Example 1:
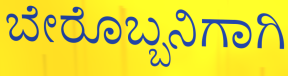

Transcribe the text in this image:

ಬೇರೊಬ್ಬನಿಗಾಗಿ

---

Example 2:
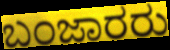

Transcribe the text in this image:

ಬಂಜಾರರು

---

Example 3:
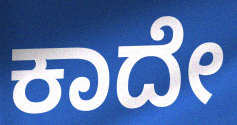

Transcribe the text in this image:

ಕಾದೇ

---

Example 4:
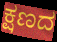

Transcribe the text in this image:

ಕ್ಷಣದ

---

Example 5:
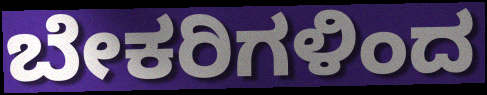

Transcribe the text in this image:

ಬೇಕರಿಗಳಿಂದ